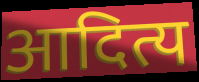
आदित्‍य